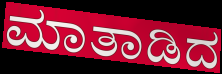
ಮಾತಾಡಿದ